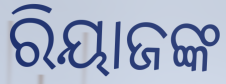
ରିୟାଜଙ୍କ